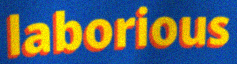
laborious